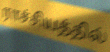
ராச்சியத்தில்